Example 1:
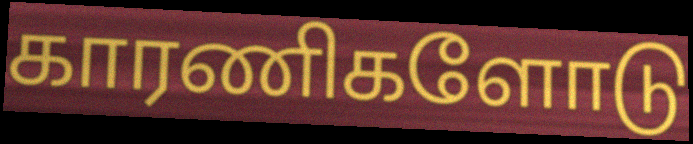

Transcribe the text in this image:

காரணிகளோடு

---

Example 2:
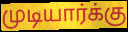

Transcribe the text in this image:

முடியார்க்கு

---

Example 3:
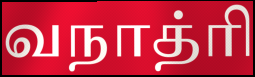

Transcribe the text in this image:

வநாத்ரி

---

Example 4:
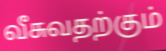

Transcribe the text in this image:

வீசுவதற்கும்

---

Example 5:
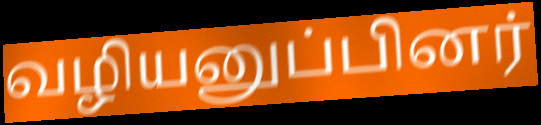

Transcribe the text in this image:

வழியனுப்பினர்